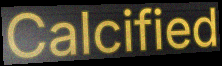
Calcified